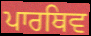
ਪਾਰਥਿਵ